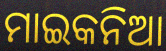
ମାଇକନିଆ